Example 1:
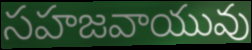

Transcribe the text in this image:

సహజవాయువు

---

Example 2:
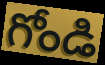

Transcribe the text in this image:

గోండి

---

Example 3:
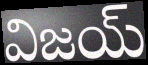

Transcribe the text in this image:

విజయ్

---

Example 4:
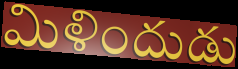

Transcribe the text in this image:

మిళిందుడు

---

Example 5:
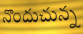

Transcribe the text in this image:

నొందుచున్న